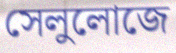
সেলুলোজে